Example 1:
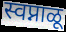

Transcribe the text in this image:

स्वप्नाळू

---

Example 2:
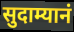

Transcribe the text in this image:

सुदाम्यानं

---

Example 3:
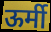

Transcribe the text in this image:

ऊर्मी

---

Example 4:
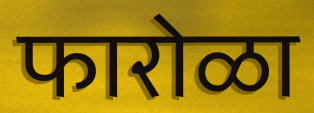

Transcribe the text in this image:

फारोळा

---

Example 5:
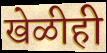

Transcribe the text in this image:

खेळीही